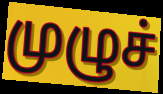
முழுச்